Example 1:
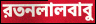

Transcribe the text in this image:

রতনলালবাবু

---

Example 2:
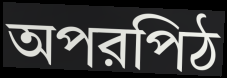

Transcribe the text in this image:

অপরপিঠ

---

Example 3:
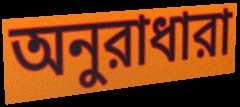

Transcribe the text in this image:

অনুরাধারা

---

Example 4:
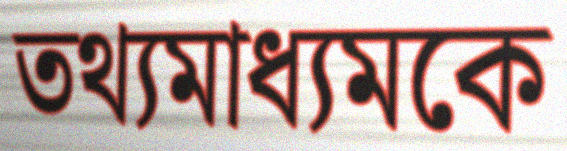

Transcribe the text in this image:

তথ্যমাধ্যমকে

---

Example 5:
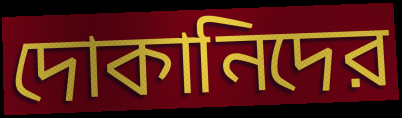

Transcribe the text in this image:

দোকানিদের